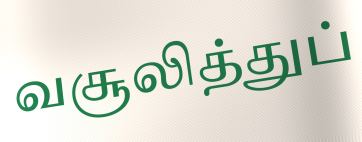
வசூலித்துப்